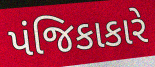
પંજિકાકારે